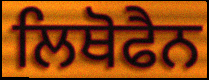
ਲਿਥੋਫੈਨ